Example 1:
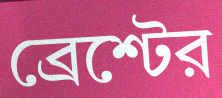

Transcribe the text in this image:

ব্রেশ্টের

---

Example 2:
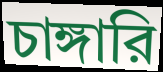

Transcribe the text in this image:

চাঙ্গারি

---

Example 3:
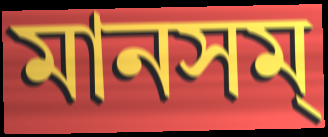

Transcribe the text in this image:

মানসম্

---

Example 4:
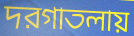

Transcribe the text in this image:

দরগাতলায়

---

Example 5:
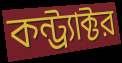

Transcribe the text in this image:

কন্ট্র্যাক্টর